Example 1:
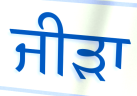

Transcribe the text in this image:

ਜੀੜਾ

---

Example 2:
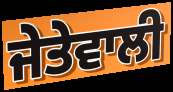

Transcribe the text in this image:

ਜੇਤੇਵਾਲੀ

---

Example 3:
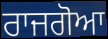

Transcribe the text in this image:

ਰਾਜਗੋਆ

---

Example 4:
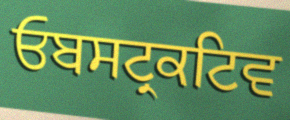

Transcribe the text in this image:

ਓਬਸਟ੍ਰਕਟਿਵ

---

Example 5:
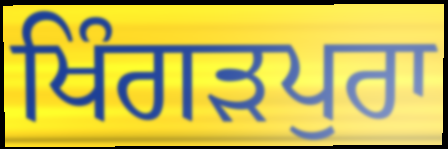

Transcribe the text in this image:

ਖਿੰਗੜਪੁਰਾ